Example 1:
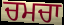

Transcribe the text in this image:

ਚਮਚਾ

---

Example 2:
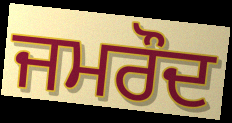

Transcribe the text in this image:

ਜਮਰੌਦ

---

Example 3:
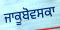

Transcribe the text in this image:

ਜਾਕੂਬੋਵਸਕਾ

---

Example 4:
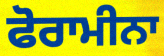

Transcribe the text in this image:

ਫੋਰਾਮੀਨਾ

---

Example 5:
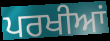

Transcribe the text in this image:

ਪਰਖੀਆਂ